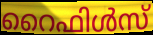
റൈഫിൾസ്